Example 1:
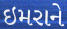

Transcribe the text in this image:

ઇમરાને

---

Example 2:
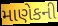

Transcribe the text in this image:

માણેકની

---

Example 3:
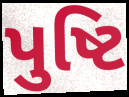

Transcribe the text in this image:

પુષ્ટિ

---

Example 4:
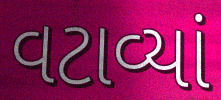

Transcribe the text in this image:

વટાવ્યાં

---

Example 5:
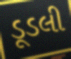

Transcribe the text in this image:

ડૂડલી